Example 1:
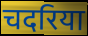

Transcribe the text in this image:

चदरिया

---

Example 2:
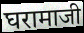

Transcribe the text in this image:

घरामाजी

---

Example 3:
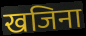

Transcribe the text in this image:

खजिना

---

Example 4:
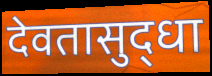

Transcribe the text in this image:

देवतासुद्धा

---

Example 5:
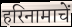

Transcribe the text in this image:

हरिनामाचें